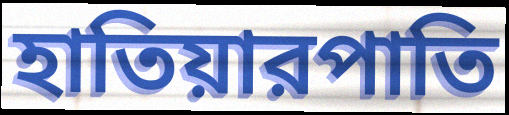
হাতিয়ারপাতি